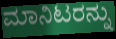
ಮಾನಿಟರನ್ನು